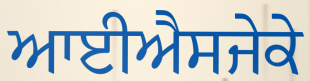
ਆਈਐਸਜੇਕੇ